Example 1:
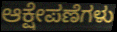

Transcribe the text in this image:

ಆಕ್ಷೇಪಣೆಗಳು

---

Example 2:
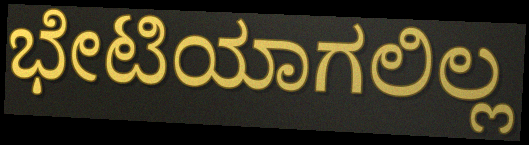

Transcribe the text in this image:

ಭೇಟಿಯಾಗಲಿಲ್ಲ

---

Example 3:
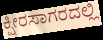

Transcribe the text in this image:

ಕ್ಷೀರಸಾಗರದಲ್ಲಿ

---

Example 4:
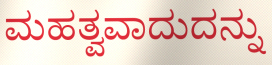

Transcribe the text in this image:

ಮಹತ್ವವಾದುದನ್ನು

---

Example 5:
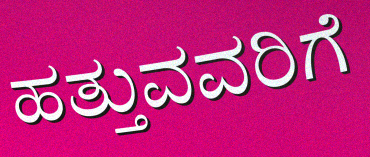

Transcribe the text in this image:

ಹತ್ತುವವರಿಗೆ